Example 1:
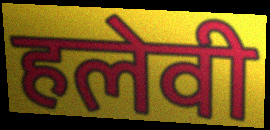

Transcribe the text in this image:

हलेवी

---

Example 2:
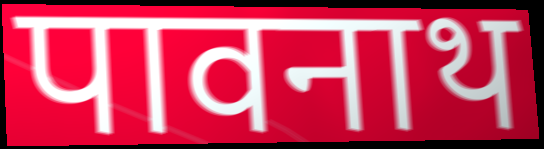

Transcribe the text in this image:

पावनाथ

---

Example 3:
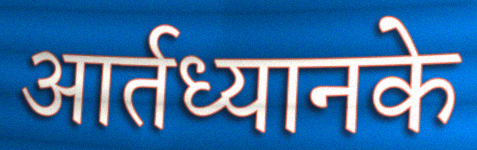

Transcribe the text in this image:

आर्तध्यानके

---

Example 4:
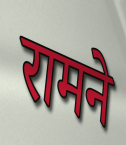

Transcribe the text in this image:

रामने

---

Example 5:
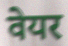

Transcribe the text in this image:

वेयर